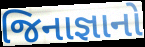
જિનાજ્ઞાનો